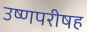
उष्णपरीषह